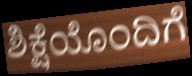
ಶಿಕ್ಷೆಯೊಂದಿಗೆ